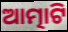
ଆତ୍ମାଟି